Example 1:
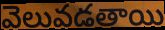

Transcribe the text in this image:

వెలువడతాయి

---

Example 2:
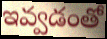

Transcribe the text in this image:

ఇవ్వడంతో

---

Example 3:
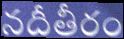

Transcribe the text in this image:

నదీతీరం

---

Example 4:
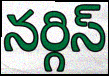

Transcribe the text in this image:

నర్గిస్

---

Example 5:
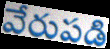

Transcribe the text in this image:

వేరుపడి